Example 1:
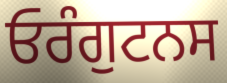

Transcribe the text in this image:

ਓਰੰਗੁਟਨਸ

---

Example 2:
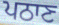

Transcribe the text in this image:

ਪਠਾਣ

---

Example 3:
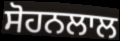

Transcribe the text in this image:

ਸੋਹਨਲਾਲ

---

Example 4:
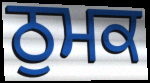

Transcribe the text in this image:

ਠੁਮਕ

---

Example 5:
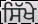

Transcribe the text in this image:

ਸਿੱਖੇ